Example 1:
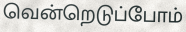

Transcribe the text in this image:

வென்றெடுப்போம்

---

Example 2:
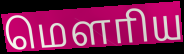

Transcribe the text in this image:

மெளரிய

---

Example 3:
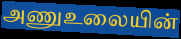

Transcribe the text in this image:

அணுஉலையின்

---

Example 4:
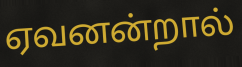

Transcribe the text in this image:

ஏவனன்றால்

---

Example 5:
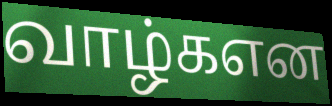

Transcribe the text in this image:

வாழ்கஎன